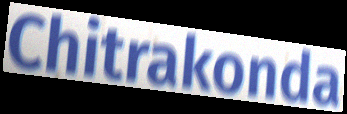
Chitrakonda